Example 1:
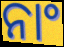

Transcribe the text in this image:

ନାଂ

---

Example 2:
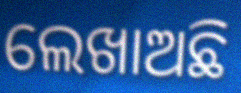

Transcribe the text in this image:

ଲେଖାଅଛି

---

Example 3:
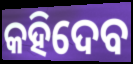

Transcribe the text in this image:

କହିଦେବ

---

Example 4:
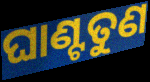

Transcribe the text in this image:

ଘାଣ୍ଟତୁଣ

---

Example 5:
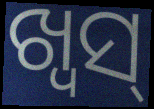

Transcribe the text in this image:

ଖ୍ୱସ୍